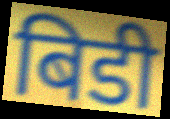
बिडी